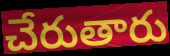
చేరుతారు